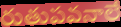
రుతుపవనాలే